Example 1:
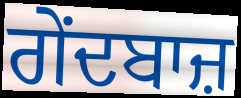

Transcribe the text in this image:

ਗੇਂਦਬਾਜ਼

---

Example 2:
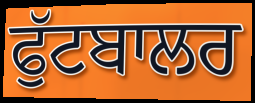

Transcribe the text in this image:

ਫੁੱਟਬਾਲਰ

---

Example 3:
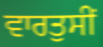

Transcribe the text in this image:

ਵਾਰਤੁਸੀਂ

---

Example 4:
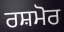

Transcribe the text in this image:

ਰਸ਼ਮੋਰ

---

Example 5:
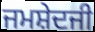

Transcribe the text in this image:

ਜਮਸ਼ੇਦਜੀ